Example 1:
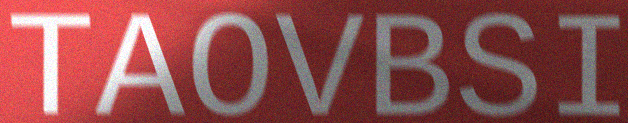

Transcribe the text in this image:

TAOVBSI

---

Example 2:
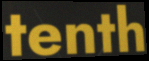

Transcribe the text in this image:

tenth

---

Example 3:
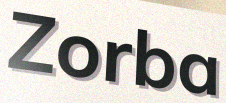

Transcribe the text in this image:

Zorba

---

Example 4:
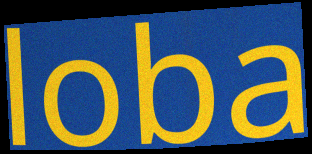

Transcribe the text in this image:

loba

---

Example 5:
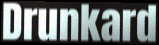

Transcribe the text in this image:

Drunkard